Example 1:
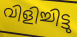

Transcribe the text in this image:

വിളിച്ചിട്ടു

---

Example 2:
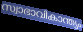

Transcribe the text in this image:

സ്വാഭാവികാന്ത്യം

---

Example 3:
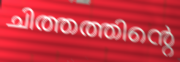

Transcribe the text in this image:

ചിത്തത്തിന്റെ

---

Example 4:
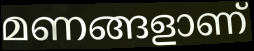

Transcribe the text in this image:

മണങ്ങളാണ്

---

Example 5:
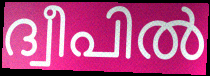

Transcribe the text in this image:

ദ്വീപിൽ